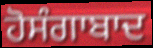
ਹੋਸੰਗਾਬਾਦ